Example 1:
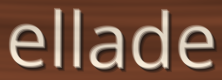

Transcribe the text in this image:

ellade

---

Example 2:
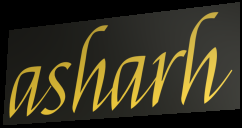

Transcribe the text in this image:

asharh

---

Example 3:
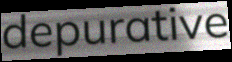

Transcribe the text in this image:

depurative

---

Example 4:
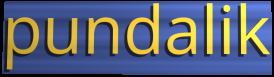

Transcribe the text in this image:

pundalik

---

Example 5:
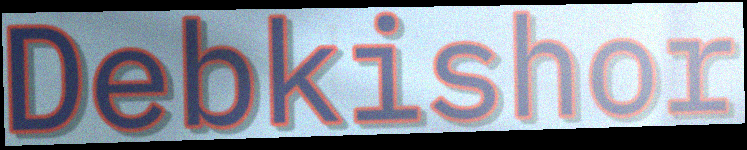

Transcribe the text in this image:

Debkishor